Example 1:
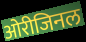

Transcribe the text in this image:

ओरीजिनल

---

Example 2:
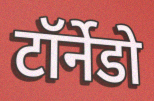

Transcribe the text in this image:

टॉर्नेडो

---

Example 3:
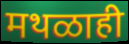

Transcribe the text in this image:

मथळाही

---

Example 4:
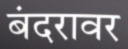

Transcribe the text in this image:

बंदरावर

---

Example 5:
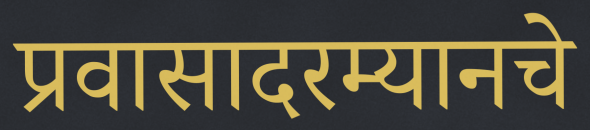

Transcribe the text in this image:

प्रवासादरम्यानचे